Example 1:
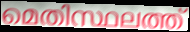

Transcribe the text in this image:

മെതിസ്ഥലത്ത്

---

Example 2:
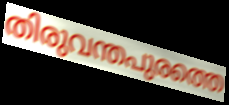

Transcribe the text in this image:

തിരുവന്തപുരത്തെ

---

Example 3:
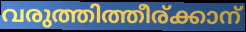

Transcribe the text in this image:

വരുത്തിത്തീര്ക്കാന്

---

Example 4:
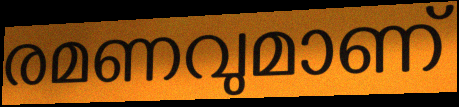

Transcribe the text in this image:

രമണവുമാണ്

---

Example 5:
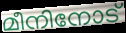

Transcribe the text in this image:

മീനിനോട്